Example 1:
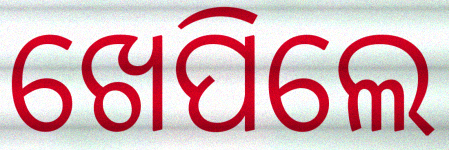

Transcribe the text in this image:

ଖେପିଲେ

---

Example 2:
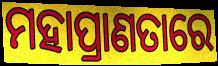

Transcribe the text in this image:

ମହାପ୍ରାଣତାରେ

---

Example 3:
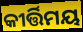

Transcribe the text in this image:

କୀର୍ତ୍ତିମୟ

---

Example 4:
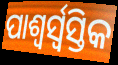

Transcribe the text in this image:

ପାଶ୍ୱର୍ସ୍ୱସ୍ତିକ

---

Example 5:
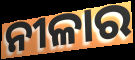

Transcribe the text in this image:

ନୀଳାର